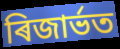
ৰিজাৰ্ভত